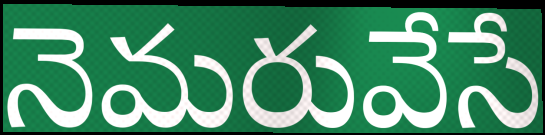
నెమరువేసే